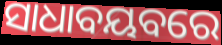
ସାଧାବୟବରେ